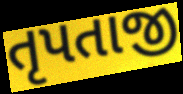
તૃપતાજી